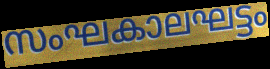
സംഘകാലഘട്ടം